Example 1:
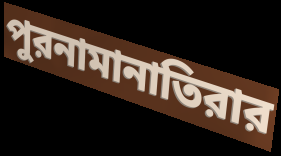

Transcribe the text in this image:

পুরনামানাতিরার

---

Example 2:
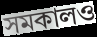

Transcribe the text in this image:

সমকালও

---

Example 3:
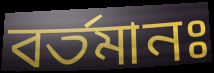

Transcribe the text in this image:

বর্তমানঃ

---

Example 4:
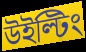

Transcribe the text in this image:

উইল্টিং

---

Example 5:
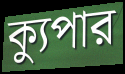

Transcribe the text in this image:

ক্যুপার